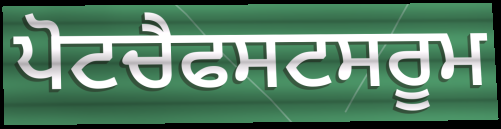
ਪੋਟਚੈਫਸਟਸਰੂਮ